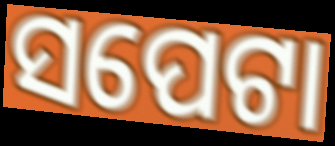
ସପେଟା